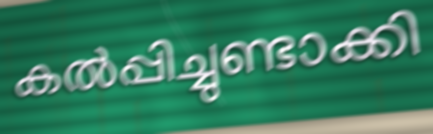
കൽപ്പിച്ചുണ്ടാക്കി